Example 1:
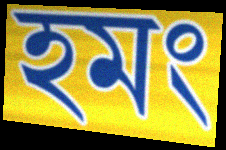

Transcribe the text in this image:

হমং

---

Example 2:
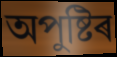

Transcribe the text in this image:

অপুষ্টিৰ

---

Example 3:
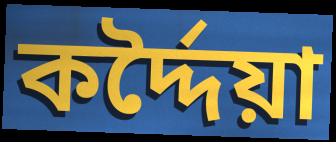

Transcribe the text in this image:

কৰ্দ্দৈয়া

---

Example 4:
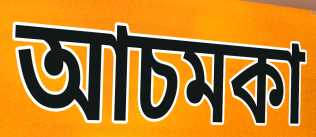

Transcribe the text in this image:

আচমকা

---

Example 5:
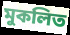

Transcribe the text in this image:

মুকলিত